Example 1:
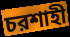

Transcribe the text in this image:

চরশাহী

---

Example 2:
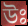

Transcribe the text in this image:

উঃ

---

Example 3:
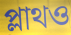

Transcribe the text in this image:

প্লাথও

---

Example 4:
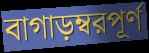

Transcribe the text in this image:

বাগাড়ম্বরপূর্ণ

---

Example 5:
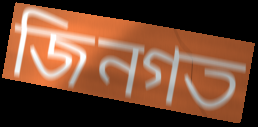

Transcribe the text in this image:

জিনগত